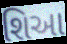
શિઆ